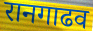
रानगाढव